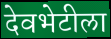
देवभेटीला